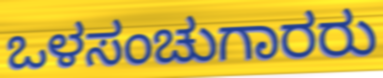
ಒಳಸಂಚುಗಾರರು